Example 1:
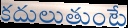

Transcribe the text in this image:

కదులుతుంటే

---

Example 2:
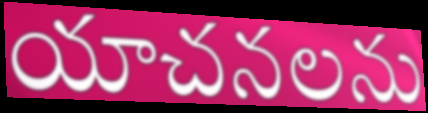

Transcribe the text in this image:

యాచనలను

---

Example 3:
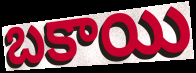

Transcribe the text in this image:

బకాయి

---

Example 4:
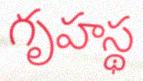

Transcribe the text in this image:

గృహస్థ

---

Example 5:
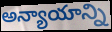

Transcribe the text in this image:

అన్యాయాన్ని